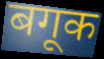
बगूक